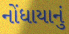
નોંધાયાનું